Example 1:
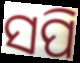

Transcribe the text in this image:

ସପି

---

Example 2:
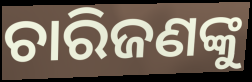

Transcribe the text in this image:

ଚାରିଜଣଙ୍କୁ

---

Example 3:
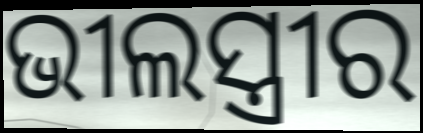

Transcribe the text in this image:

ଭୀଲସ୍ତ୍ରୀର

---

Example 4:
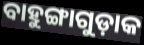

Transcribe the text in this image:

ବାହୁଙ୍ଗାଗୁଡ଼ାକ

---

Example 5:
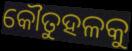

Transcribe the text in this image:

କୌତୁହଳକୁ